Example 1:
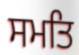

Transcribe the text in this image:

ਸਮਤਿ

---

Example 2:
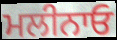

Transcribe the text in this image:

ਮਲੀਨਾਓ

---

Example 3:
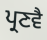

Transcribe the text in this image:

ਪ੍ਰਣਵੈ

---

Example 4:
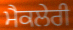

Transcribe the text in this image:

ਮੈਕਲੇਰੀ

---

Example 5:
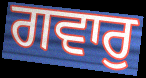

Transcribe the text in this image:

ਗਵਾਰੁ